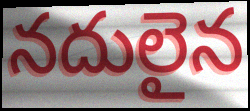
నదులైన